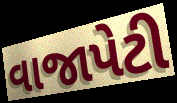
વાજાપેટી